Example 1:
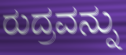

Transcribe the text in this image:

ರುದ್ರವನ್ನು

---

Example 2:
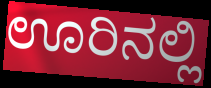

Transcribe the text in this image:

ಊರಿನಲ್ಲಿ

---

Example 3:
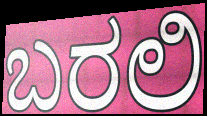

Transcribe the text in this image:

ಬರಲಿ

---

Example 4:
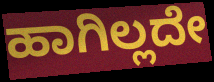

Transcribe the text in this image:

ಹಾಗಿಲ್ಲದೇ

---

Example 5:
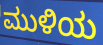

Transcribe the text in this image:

ಮುಳಿಯ